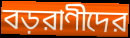
বড়রাণীদের